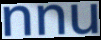
nnu